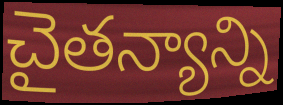
చైతన్యాన్ని